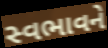
સ્વભાવને